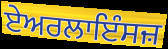
ਏਅਰਲਾਇੰਸਜ਼